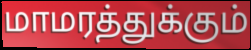
மாமரத்துக்கும்